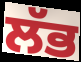
ਲੱਭ